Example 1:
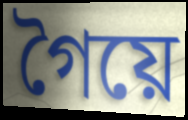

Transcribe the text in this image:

গৈয়ে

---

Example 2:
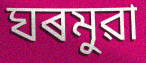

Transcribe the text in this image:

ঘৰমুৱা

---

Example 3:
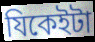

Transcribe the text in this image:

যিকেইটা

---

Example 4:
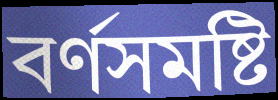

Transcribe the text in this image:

বৰ্ণসমষ্টি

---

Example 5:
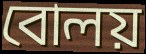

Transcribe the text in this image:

বোলয়